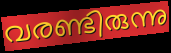
വരണ്ടിരുന്നു